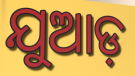
ଯୁଆଡ଼